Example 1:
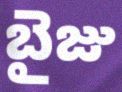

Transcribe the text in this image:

బైజు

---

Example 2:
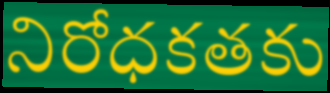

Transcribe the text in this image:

నిరోధకతకు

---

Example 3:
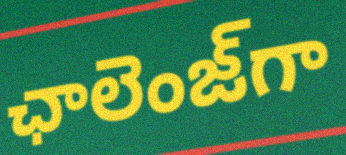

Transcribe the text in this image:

ఛాలెంజ్‌గా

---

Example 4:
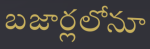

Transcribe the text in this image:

బజార్లలోనూ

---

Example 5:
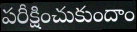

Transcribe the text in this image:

పరీక్షించుకుందాం